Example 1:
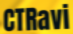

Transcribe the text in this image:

CTRavi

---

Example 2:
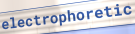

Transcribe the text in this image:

electrophoretic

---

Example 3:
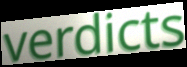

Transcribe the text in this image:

verdicts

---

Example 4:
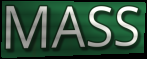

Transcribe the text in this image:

MASS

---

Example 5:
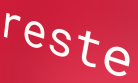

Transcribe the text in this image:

reste